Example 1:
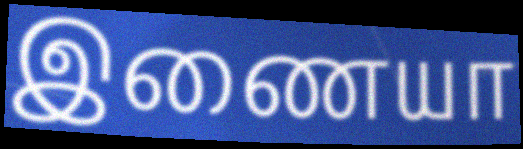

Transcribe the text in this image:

இணையா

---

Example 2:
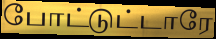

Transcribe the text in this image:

போட்டுட்டாரே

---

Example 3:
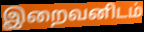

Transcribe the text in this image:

இறைவனிடம்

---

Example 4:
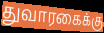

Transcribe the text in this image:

துவாரகைக்கு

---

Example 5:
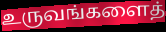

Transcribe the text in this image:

உருவங்களைத்